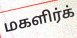
மகளிர்க்